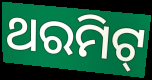
ଥରମିଟ୍